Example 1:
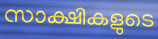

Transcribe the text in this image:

സാക്ഷികളുടെ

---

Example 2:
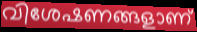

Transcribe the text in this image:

വിശേഷണങ്ങളാണ്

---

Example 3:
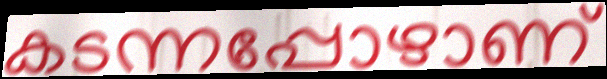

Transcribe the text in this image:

കടന്നപ്പോഴാണ്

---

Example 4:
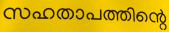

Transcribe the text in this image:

സഹതാപത്തിന്റെ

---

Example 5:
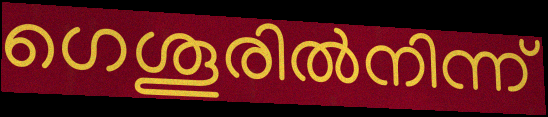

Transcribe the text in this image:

ഗെശൂരിൽനിന്ന്